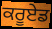
ਕਰੂਏਡ